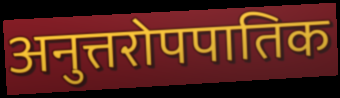
अनुत्तरोपपातिक